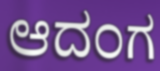
ಆದಂಗ